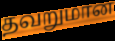
தவறுமான